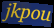
jkpou